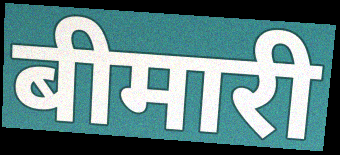
बीमारी